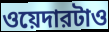
ওয়েদারটাও